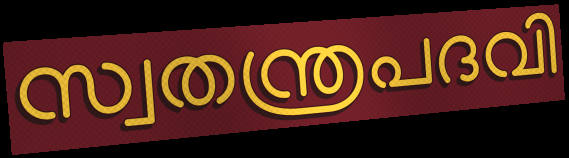
സ്വതന്ത്രപദവി